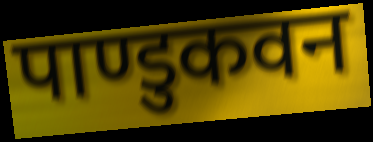
पाण्डुकवन